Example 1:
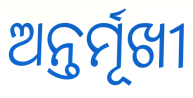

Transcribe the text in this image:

ଅନ୍ତର୍ମୂଖୀ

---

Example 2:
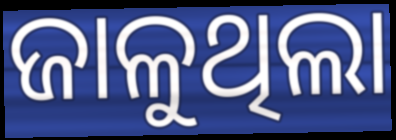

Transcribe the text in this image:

ଜାଳୁଥିଲା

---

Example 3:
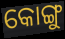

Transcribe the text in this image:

କୋଙ୍ଗୁ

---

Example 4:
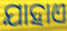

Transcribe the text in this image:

ଯାହାଏ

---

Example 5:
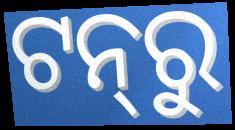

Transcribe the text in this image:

ଟନ୍‍ରୁ